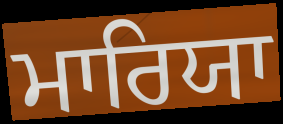
ਮਾਰਿਯਾ